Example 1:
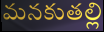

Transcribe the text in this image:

మనకుతల్లి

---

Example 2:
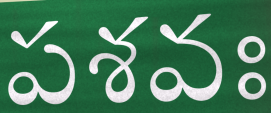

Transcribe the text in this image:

పశవః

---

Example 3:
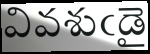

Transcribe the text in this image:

వివశుఁడై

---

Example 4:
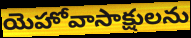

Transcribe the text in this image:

యెహోవాసాక్షులను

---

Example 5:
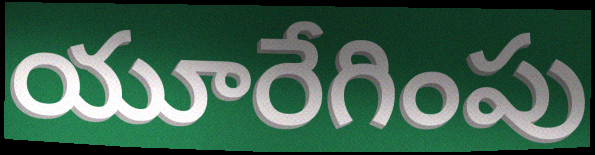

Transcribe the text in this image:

యూరేగింపు